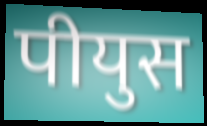
पीयुस